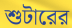
শুটারের